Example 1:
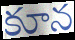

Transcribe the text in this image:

కూన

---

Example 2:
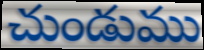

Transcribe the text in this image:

చుండుము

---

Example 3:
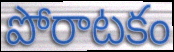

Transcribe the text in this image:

పోరాటకం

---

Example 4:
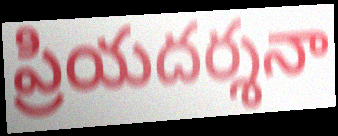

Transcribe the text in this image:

ప్రియదర్శనా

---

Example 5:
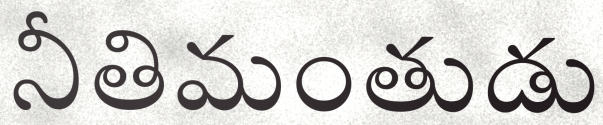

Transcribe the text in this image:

నీతిమంతుడు